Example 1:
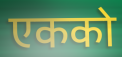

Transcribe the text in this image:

एकको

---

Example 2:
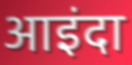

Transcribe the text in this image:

आइंदा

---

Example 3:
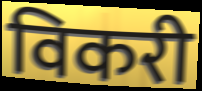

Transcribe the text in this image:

विकरी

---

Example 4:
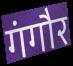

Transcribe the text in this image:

गंगौर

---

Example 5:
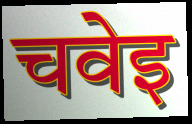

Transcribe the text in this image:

चवेइ